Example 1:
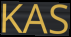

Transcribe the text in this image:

KAS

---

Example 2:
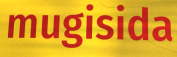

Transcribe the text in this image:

mugisida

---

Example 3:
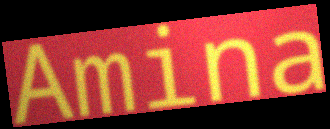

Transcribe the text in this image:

Amina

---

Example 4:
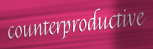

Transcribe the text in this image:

counterproductive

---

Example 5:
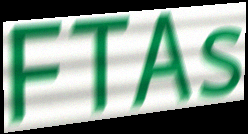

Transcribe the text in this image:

FTAs